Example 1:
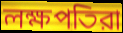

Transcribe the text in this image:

লক্ষপতিরা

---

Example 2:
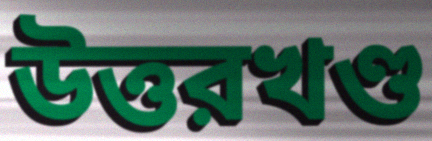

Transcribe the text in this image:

উত্তরখণ্ড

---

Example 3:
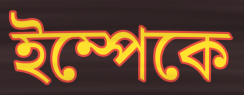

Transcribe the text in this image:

ইম্পেকে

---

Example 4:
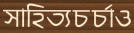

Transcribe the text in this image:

সাহিত্যচর্চাও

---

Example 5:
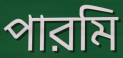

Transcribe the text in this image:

পারমি